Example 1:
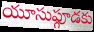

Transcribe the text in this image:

యూసుఫ్గూడకు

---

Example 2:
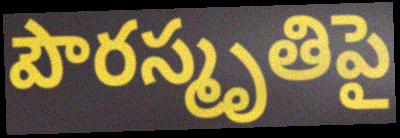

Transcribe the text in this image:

పౌరస్మృతిపై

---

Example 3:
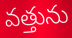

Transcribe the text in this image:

వత్తును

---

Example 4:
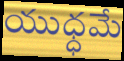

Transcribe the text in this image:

యుధ్ధమే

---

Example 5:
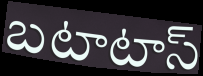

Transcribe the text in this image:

బటాటాస్